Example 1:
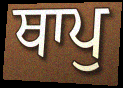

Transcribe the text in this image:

ਥਾਪੁ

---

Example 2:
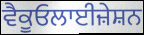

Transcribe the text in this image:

ਵੈਕੂਓਲਾਈਜ਼ੇਸ਼ਨ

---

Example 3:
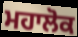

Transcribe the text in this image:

ਮਹਾਲੋਕ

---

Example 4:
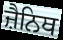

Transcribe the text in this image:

ਜ਼ੈਨਿਥ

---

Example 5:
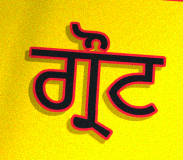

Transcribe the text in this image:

ਗ੍ਰੌਟ